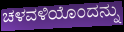
ಚಳವಳಿಯೊಂದನ್ನು